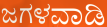
ಜಗಳವಾಡಿ